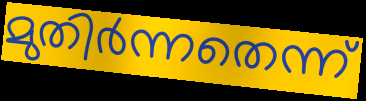
മുതിർന്നതെന്ന്